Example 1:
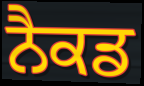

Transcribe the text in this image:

ਨੈਕਡ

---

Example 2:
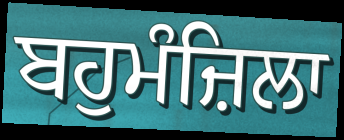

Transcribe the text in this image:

ਬਹੁਮੰਜ਼ਿਲਾ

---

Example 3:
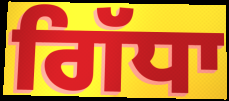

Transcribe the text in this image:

ਗਿੱਧਾ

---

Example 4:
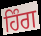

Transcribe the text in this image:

ਹਿੰਗ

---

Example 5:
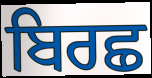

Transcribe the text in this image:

ਬਿਰਛ